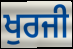
ਖੁਰਜੀ